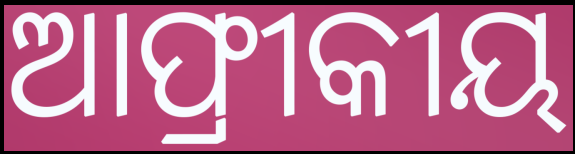
ଆଫ୍ରୀକୀୟ